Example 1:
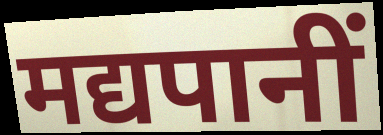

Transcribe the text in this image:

मद्यपानीं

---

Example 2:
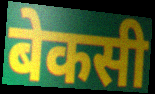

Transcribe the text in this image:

बेकसी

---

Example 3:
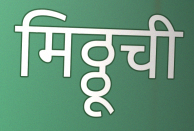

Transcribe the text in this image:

मिठ्ठूची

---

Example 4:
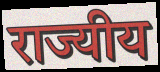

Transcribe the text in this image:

राज्यीय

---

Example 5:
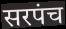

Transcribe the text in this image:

सरपंच